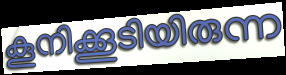
കൂനിക്കൂടിയിരുന്ന